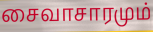
சைவாசாரமும்